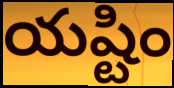
యష్టిం